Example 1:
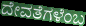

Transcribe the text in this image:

ದೇವತೆಗಳೆಂಬ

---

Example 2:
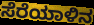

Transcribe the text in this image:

ಸೆರೆಯಾಳಿನ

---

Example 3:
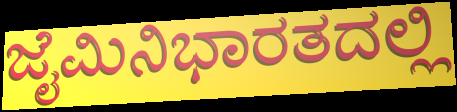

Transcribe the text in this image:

ಜೈಮಿನಿಭಾರತದಲ್ಲಿ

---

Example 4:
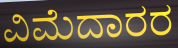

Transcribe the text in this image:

ವಿಮೆದಾರರ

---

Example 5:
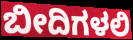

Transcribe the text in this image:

ಬೀದಿಗಳಲಿ